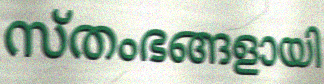
സ്തംഭങ്ങളായി